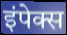
इंपेक्स